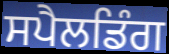
ਸਪੈਲਡਿੰਗ